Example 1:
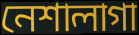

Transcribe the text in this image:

নেশালাগা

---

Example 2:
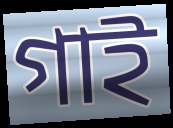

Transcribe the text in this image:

গাই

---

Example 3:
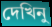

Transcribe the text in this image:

দেখিনু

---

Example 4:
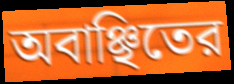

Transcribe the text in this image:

অবাঞ্ছিতের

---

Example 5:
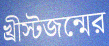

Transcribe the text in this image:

খ্রীস্টজন্মের